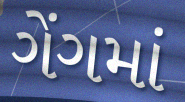
ગેંગમાં